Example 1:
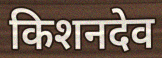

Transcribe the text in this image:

किशनदेव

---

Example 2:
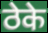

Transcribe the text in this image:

ठेके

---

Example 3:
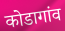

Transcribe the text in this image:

कोडागांव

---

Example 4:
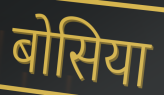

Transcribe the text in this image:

बोसिया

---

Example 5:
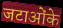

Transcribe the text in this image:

जटाओंके